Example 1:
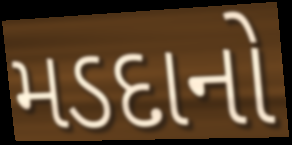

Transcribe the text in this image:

મડદાનો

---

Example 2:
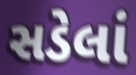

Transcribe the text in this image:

સડેલાં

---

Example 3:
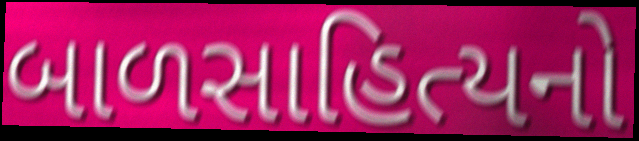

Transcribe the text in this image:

બાળસાહિત્યનો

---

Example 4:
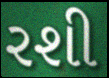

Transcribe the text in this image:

રશી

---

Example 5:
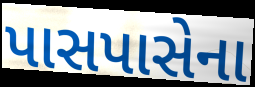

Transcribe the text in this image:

પાસપાસેના